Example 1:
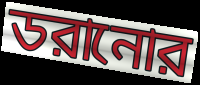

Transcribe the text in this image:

ডরানোর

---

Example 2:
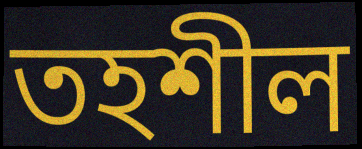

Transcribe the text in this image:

তহশীল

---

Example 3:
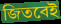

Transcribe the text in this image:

জিতবেই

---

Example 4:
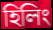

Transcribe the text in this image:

হিলিং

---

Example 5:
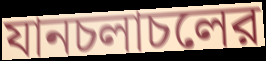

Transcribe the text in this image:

যানচলাচলের